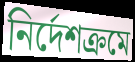
নির্দেশক্রমে